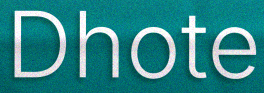
Dhote